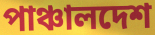
পাঞ্চালদেশ